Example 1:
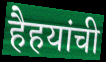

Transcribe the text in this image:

हैहयांची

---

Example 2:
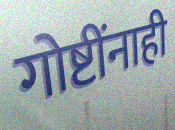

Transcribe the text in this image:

गोष्टींनाही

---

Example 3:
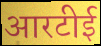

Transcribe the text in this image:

आरटीई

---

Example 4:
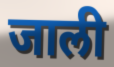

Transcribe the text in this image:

जाली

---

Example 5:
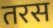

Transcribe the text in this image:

तरस